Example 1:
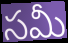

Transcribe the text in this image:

సమీ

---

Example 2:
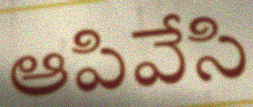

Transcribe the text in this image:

ఆపివేసి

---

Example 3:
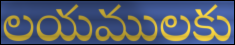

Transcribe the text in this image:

లయములకు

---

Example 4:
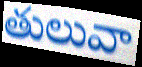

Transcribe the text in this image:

తులువా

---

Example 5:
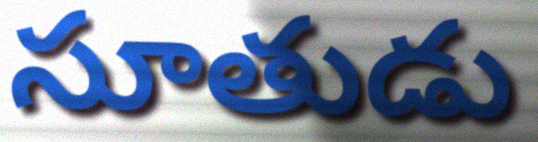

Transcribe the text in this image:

సూతుడు